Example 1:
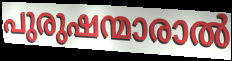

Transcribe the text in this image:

പുരുഷന്മാരാൽ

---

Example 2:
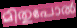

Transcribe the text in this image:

മിതുപോൽ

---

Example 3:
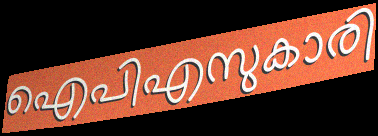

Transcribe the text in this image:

ഐപിഎസുകാരി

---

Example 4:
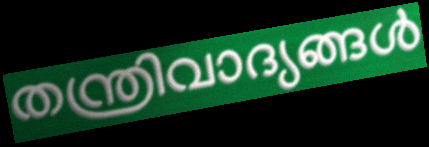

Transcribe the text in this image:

തന്ത്രിവാദ്യങ്ങൾ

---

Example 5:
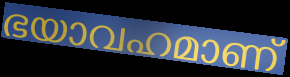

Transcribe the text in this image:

ഭയാവഹമാണ്